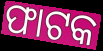
ଫାଟକ